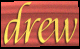
drew